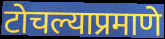
टोचल्याप्रमाणे